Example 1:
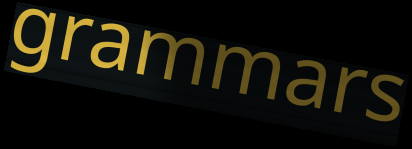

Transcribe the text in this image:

grammars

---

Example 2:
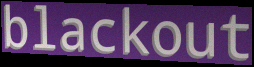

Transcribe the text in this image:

blackout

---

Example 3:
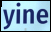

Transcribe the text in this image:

yine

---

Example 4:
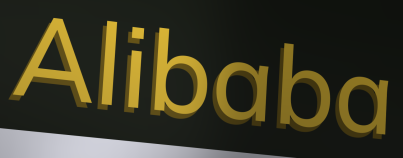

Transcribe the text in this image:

Alibaba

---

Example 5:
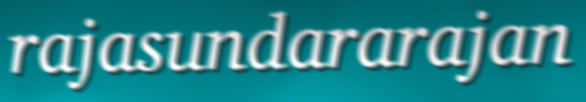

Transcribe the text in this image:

rajasundararajan